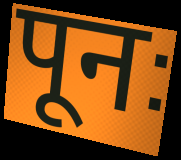
पूनः